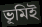
ভূমিই